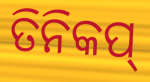
ତିନିକପ୍